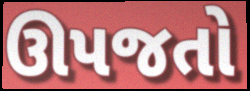
ઊપજતો